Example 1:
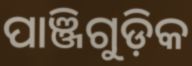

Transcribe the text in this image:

ପାଞ୍ଜିଗୁଡ଼ିକ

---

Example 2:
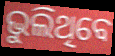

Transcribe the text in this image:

ଭୁଲିଥିବେ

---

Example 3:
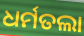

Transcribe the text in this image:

ଧର୍ମତଲା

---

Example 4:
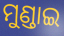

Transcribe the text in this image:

ମୁଣ୍ଡାଇ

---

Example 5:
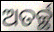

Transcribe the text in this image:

ଅତର୍ଚ୍ଛ